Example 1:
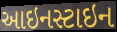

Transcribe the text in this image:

આઇનસ્ટાઇન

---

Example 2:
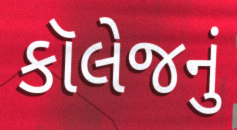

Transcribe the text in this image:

કૉલેજનું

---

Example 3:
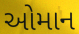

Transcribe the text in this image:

ઓમાન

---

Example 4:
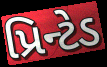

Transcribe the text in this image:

પ્રિન્ટેડ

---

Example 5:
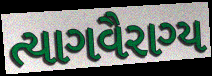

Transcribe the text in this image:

ત્યાગવૈરાગ્ય